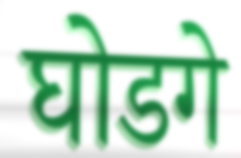
घोडगे